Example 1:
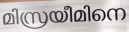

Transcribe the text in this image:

മിസ്രയീമിനെ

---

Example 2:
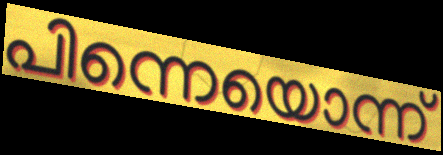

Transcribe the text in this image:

പിന്നെയൊന്ന്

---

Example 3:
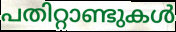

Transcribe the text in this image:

പതിറ്റാണ്ടുകൾ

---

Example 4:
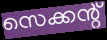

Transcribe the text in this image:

സെക്കന്റ്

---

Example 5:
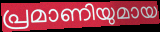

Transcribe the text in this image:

പ്രമാണിയുമായ